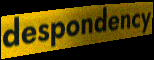
despondency